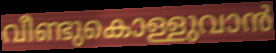
വീണ്ടുകൊള്ളുവാൻ